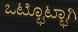
ಒಟ್ಟೊಟ್ಟಾಗಿ